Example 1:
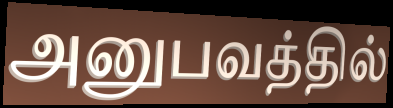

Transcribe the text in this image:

அனுபவத்தில்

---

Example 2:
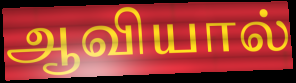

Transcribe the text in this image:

ஆவியால்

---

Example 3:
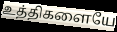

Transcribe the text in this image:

உத்திகளையே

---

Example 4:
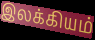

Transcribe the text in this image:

இலக்கியம்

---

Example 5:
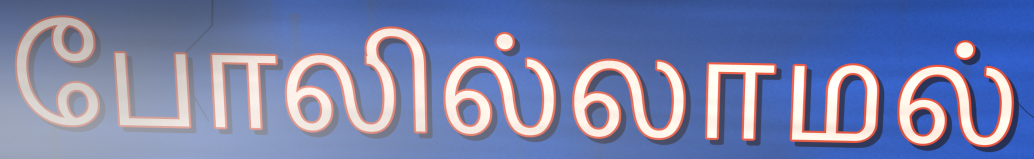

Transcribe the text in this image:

போலில்லாமல்